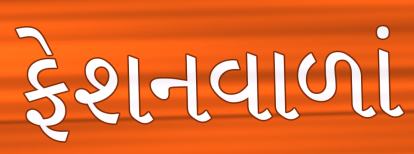
ફેશનવાળાં